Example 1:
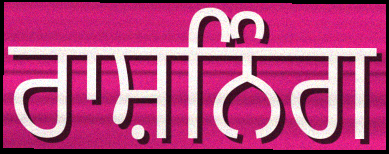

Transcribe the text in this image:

ਰਾਸ਼ਨਿੰਗ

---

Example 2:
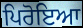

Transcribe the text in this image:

ਪਿਰੋਇਆ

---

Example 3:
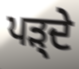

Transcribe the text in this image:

ਪੜ੍ਦੇ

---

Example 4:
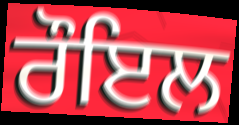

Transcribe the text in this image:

ਰੌਇਲ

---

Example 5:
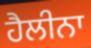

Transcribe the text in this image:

ਹੈਲੀਨਾ